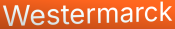
Westermarck